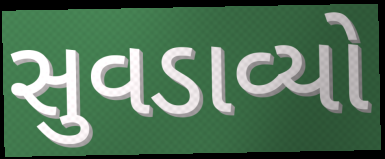
સુવડાવ્યો